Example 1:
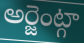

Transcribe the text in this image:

అర్జెంట్గా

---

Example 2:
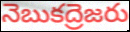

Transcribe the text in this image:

నెబుకద్రెజరు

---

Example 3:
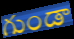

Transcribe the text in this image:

గుండా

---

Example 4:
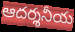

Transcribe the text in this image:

ఆదర్శనీయ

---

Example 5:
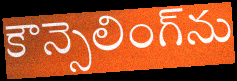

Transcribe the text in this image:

కౌన్సెలింగ్‌ను